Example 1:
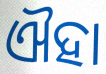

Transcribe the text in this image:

ଐହା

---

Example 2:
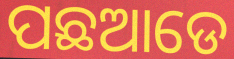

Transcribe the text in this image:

ପଛଆଡେ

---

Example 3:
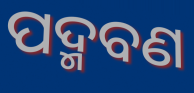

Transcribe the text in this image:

ପଦ୍ମବଣ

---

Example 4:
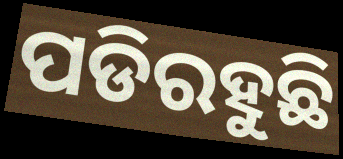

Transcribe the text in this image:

ପଡିରହୁଛି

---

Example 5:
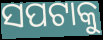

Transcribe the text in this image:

ସପଟାକୁ